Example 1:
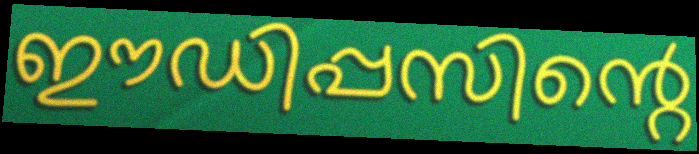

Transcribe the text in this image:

ഈഡിപ്പസിന്റെ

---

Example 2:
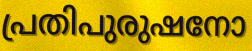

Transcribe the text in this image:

പ്രതിപുരുഷനോ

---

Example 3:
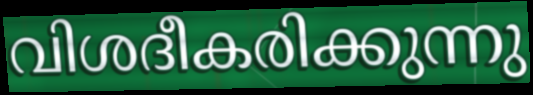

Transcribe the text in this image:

വിശദീകരിക്കുന്നു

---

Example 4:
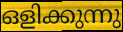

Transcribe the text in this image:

ഒളിക്കുന്നു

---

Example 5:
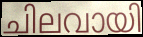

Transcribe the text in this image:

ചിലവായി